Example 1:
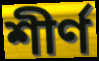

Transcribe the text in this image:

শীৰ্ণ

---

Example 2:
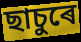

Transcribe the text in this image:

ছাচুৰে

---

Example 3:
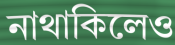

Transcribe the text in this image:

নাথাকিলেও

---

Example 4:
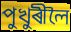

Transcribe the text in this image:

পুখুৰীলৈ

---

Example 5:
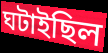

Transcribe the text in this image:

ঘটাইছিল